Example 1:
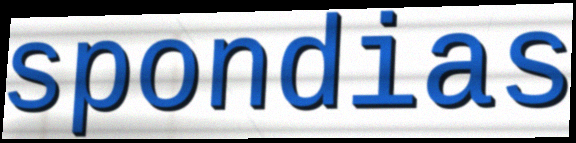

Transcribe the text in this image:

spondias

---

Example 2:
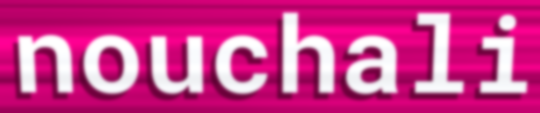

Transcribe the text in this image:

nouchali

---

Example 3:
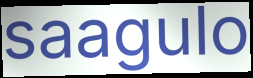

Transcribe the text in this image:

saagulo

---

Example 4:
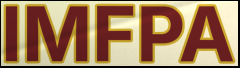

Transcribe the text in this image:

IMFPA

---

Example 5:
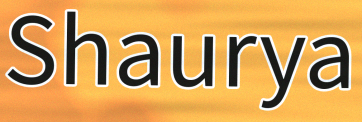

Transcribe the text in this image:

Shaurya